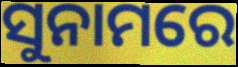
ସୁନାମରେ